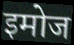
इमोज